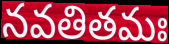
నవతితమః